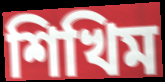
শিখিম